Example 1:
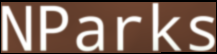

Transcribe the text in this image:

NParks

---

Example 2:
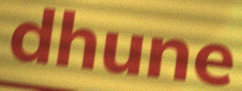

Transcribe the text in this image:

dhune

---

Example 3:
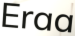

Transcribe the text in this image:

Eraa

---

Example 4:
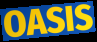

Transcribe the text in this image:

OASIS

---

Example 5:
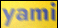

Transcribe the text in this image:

yami